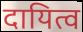
दायित्व